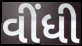
વીંધી